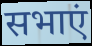
सभाएं